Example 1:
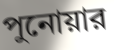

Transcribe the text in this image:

পুনোয়ার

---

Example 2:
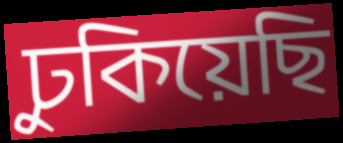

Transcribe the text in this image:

ঢুকিয়েছি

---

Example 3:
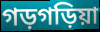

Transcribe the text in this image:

গড়গড়িয়া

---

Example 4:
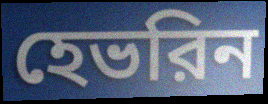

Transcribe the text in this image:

হেভরিন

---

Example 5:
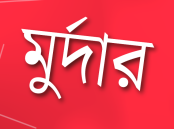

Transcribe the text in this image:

মুর্দার